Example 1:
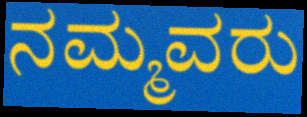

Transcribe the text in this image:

ನಮ್ಮವರು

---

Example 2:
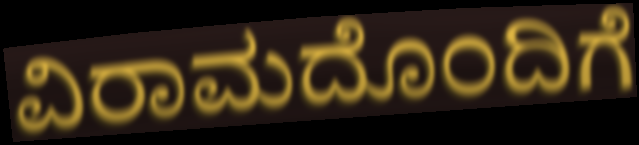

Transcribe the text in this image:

ವಿರಾಮದೊಂದಿಗೆ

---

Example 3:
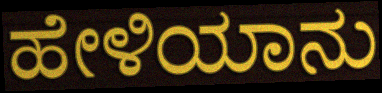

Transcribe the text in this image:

ಹೇಳಿಯಾನು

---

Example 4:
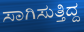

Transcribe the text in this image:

ಸಾಗಿಸುತ್ತಿದ್ದ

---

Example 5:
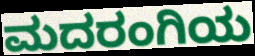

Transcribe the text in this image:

ಮದರಂಗಿಯ